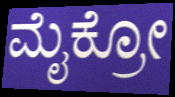
ಮೈಕ್ರೋ